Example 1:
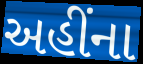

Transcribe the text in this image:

અહીંના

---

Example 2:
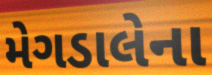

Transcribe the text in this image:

મેગડાલેના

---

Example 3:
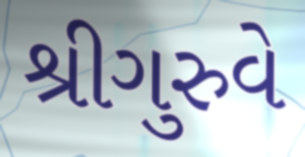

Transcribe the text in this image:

શ્રીગુરુવે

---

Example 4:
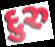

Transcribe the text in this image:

દુરુ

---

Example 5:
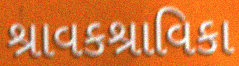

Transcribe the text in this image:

શ્રાવકશ્રાવિકા